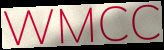
WMCC